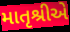
માતૃશ્રીએ